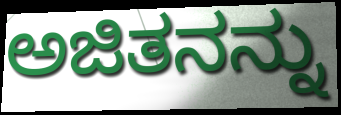
ಅಜಿತನನ್ನು